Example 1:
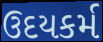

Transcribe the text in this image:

ઉદયકર્મ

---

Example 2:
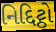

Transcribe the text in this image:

નિદ્દિટ્ઠો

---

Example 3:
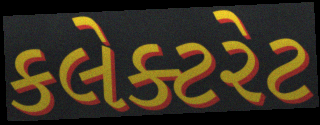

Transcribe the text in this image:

કલેક્ટરેટ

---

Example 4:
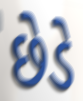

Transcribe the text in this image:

છેડે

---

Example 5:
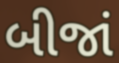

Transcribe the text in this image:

બીજાં